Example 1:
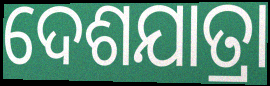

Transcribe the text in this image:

ଦେଶଯାତ୍ରା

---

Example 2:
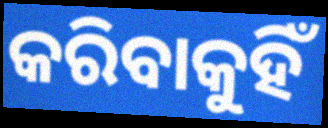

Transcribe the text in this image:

କରିବାକୁହିଁ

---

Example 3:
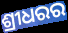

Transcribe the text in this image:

ଶ୍ରୀଧରର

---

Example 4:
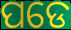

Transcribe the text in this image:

ପଡେ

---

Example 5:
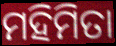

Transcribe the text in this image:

ମହିମିତା